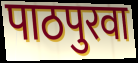
पाठपुरवा